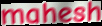
mahesh